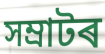
সম্ৰাটৰ